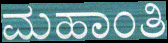
ಮಹಾಂತಿ